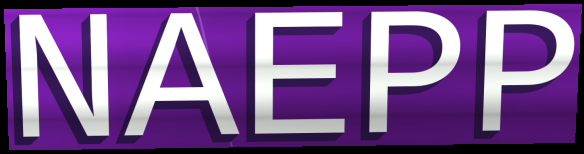
NAEPP